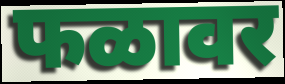
फळावर